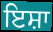
ਇਸ਼ਾ